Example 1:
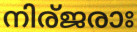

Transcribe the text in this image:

നിര്ജരാഃ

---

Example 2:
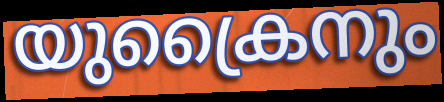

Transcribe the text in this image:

യുക്രൈനും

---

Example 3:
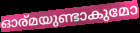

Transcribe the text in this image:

ഓര്മയുണ്ടാകുമോ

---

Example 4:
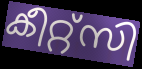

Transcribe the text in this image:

കീറ്റ്സി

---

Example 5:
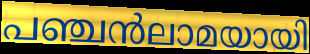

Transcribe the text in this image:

പഞ്ചൻലാമയായി